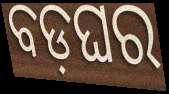
ବଡ଼ଘର